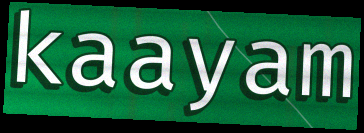
kaayam